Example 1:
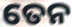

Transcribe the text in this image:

ତେନ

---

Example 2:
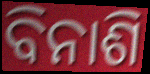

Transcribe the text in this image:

ବିନାଶି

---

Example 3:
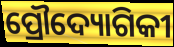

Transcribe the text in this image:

ପ୍ରୌଦ୍ୟୋଗିକୀ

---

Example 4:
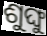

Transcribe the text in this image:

ଶୁଙ୍ଘୁ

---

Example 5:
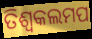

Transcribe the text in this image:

ତିଶ୍ୱକଲମପ